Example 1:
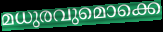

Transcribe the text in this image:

മധുരവുമൊക്കെ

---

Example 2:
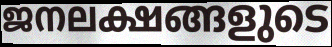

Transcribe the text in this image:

ജനലക്ഷങ്ങളുടെ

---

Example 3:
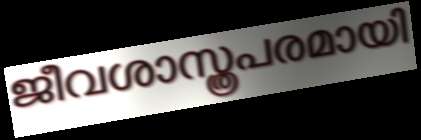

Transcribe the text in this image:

ജീവശാസ്ത്രപരമായി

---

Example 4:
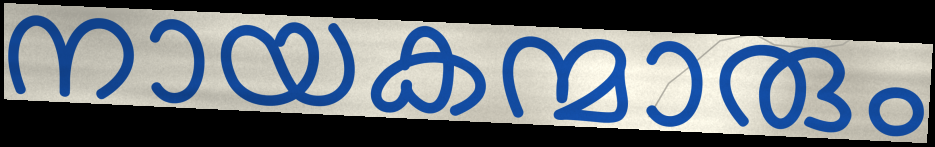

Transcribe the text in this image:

നായകന്മാരും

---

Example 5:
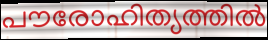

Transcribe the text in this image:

പൗരോഹിത്യത്തിൽ